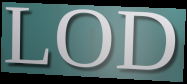
LOD